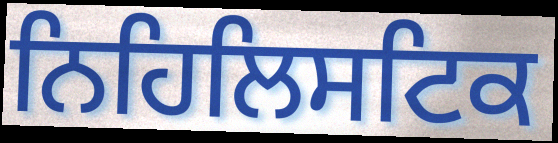
ਨਿਹਿਲਿਸਟਿਕ